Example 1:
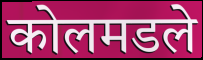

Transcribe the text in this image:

कोलमडले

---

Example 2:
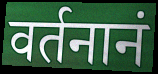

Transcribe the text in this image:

वर्तनानं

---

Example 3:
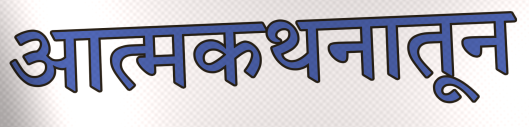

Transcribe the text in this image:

आत्मकथनातून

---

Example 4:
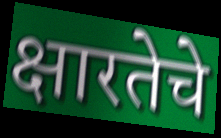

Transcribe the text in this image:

क्षारतेचे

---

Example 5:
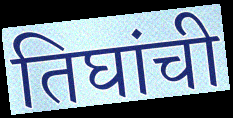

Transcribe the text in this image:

तिघांची